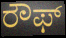
ರೌಫ್